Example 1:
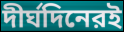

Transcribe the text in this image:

দীর্ঘদিনেরই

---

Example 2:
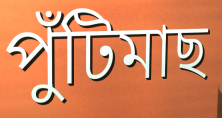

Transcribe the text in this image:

পুঁটিমাছ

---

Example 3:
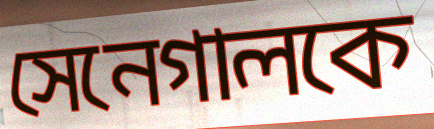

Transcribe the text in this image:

সেনেগালকে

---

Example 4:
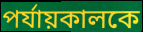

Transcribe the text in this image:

পর্যায়কালকে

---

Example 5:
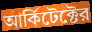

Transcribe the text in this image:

আর্কিটেক্টের